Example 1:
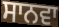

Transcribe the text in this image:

ਸਾਨਵਾ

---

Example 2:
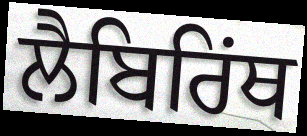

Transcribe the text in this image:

ਲੈਬਿਰਿਂਥ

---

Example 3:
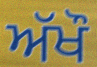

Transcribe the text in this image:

ਅੱਖੌ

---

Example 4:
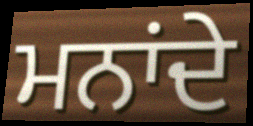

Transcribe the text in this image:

ਮਨਾਂਦੇ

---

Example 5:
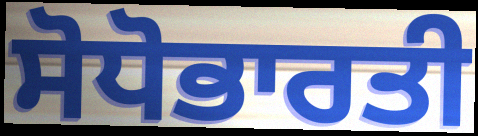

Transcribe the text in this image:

ਸੋਧੋਭਾਰਤੀ